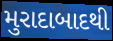
મુરાદાબાદથી